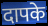
दापके